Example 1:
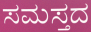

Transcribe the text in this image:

ಸಮಸ್ತದ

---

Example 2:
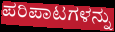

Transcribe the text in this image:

ಪರಿಪಾಟಗಳನ್ನು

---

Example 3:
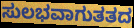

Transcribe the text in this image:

ಸುಲಭವಾಗುತತದ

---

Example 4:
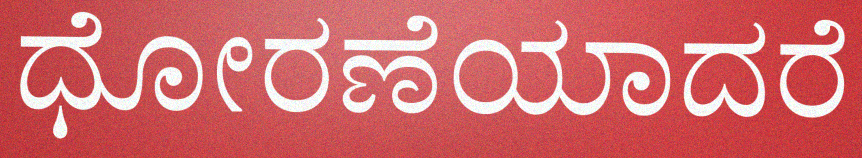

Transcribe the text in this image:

ಧೋರಣೆಯಾದರೆ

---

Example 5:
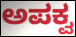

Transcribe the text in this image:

ಅಪಕ್ವ